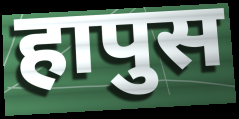
हापुस